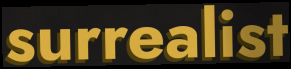
surrealist